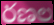
రణల